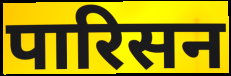
पारिसन